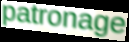
patronage